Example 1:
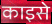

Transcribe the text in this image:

काइसे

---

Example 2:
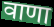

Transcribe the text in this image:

वाणा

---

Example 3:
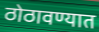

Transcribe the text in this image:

ठोठावण्यात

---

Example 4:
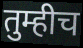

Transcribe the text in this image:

तुम्हीच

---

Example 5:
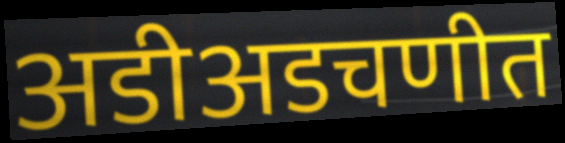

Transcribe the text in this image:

अडीअडचणीत